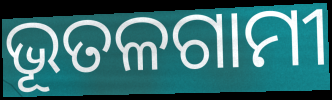
ଭୂତଳଗାମୀ